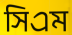
সিএম